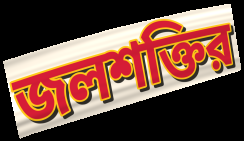
জলশক্তির